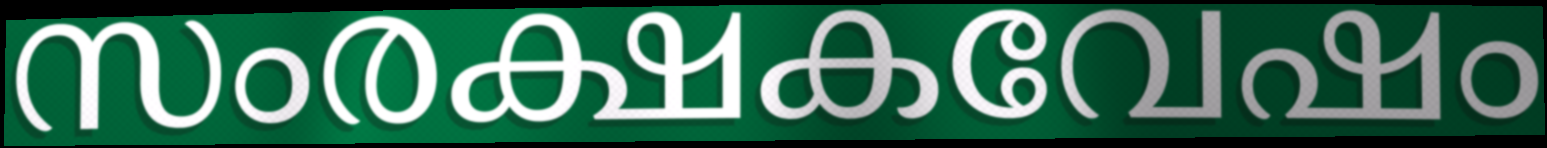
സംരക്ഷകവേഷം